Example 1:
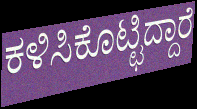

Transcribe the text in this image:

ಕಳಿಸಿಕೊಟ್ಟಿದ್ದಾರೆ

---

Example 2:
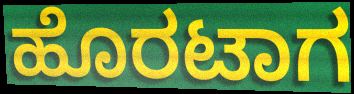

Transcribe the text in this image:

ಹೊರಟಾಗ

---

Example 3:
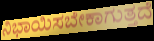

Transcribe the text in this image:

ನಿಭಾಯಿಸಬೇಕಾಗುತ್ತದೆ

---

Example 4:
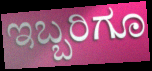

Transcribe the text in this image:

ಇಬ್ಬರಿಗೂ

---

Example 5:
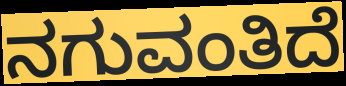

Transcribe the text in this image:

ನಗುವಂತಿದೆ